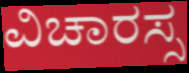
ವಿಚಾರಸ್ಸ